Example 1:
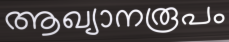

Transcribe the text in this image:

ആഖ്യാനരൂപം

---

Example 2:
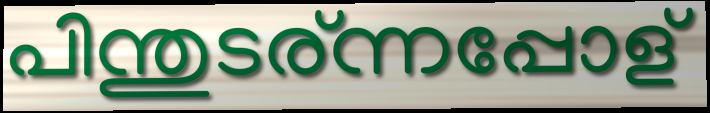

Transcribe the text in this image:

പിന്തുടര്ന്നപ്പോള്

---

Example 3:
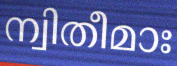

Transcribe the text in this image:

ന്വിതീമാഃ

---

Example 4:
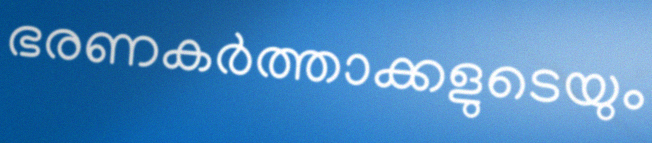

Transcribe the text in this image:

ഭരണകർത്താക്കളുടെയും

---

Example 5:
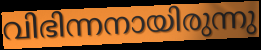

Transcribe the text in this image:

വിഭിന്നനായിരുന്നു